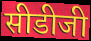
सीडीजी